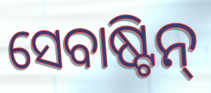
ସେବାଷ୍ଟିନ୍